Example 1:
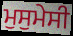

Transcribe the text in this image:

ਮੁਸੁਮੇਸੀ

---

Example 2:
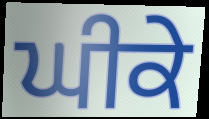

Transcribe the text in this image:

ਘੀਕੇ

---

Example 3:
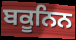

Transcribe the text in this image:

ਬਕੂਨਿਨ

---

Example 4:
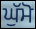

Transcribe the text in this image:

ਘੁੱਮੋ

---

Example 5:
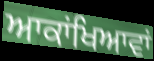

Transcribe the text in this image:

ਆਕਾਂਖਿਆਵਾਂ